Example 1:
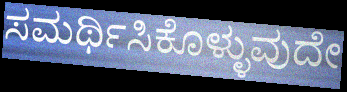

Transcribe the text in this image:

ಸಮರ್ಥಿಸಿಕೊಳ್ಳುವುದೇ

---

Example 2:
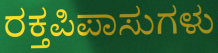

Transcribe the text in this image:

ರಕ್ತಪಿಪಾಸುಗಳು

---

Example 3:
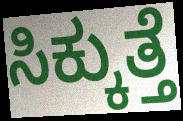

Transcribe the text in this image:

ಸಿಕ್ಕುತ್ತೆ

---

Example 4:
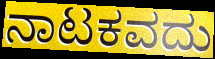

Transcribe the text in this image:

ನಾಟಕವದು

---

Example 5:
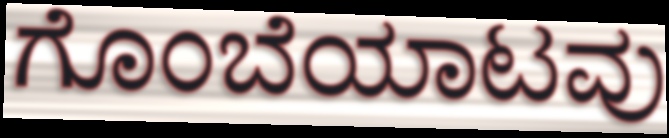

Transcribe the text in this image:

ಗೊಂಬೆಯಾಟವು